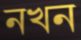
নখন